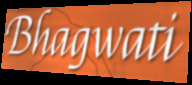
Bhagwati